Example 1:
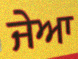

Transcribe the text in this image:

ਜੇਆ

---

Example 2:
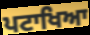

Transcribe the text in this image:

ਪਟਾਖਿਆ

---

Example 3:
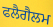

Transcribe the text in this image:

ਫਲੈਗੈਲਮ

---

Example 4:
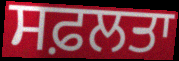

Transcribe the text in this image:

ਸਫ਼ਲਤਾ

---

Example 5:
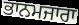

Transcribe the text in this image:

ਭਾਨਮਜਾਰਾ